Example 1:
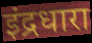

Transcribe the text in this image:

इंद्रधारा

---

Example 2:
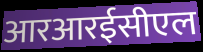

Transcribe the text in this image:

आरआरईसीएल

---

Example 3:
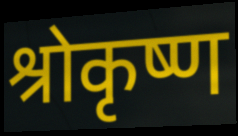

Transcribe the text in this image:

श्रोकृष्ण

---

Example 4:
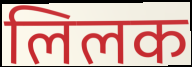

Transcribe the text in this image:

लिलक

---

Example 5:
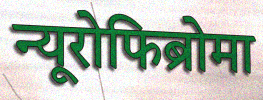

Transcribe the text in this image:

न्यूरोफिब्रोमा